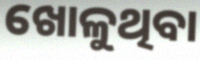
ଖୋଳୁଥିବା